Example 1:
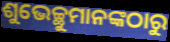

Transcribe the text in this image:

ଶୁଭେଚ୍ଛୁମାନଙ୍କଠାରୁ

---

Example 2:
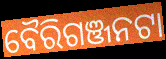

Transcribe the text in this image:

ବୈରିଗଞ୍ଜନଟା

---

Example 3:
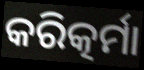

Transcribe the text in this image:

କରିତ୍କର୍ମା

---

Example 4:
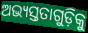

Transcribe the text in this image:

ଅଭ୍ୟସ୍ତତାଗୁଡ଼ିକୁ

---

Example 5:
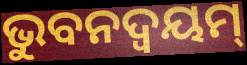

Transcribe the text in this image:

ଭୁବନଦ୍ଵୟମ୍